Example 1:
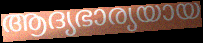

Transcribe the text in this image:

ആദ്യഭാര്യയായ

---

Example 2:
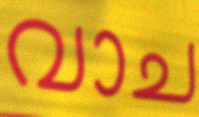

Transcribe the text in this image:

വാച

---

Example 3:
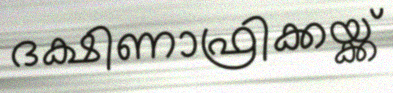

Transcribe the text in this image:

ദക്ഷിണാഫ്രിക്കയ്ക്ക്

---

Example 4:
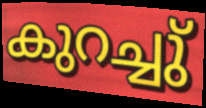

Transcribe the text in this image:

കുറച്ചു്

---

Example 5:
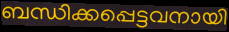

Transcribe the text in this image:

ബന്ധിക്കപ്പെട്ടവനായി